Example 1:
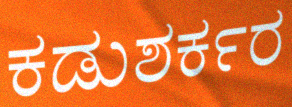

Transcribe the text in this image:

ಕಡುಶರ್ಕರ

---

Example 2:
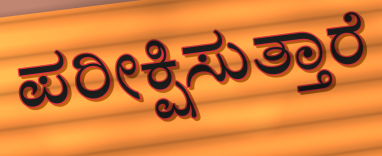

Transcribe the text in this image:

ಪರೀಕ್ಷಿಸುತ್ತಾರೆ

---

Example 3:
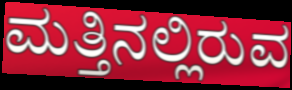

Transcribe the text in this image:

ಮತ್ತಿನಲ್ಲಿರುವ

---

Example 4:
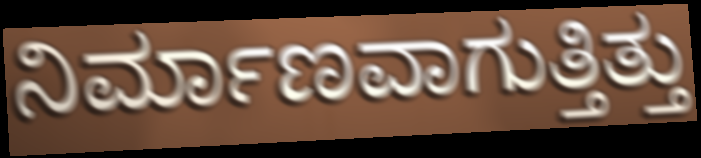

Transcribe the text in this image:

ನಿರ್ಮಾಣವಾಗುತ್ತಿತ್ತು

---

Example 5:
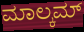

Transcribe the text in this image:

ಮಾಲ್ಕಮ್